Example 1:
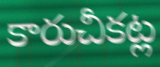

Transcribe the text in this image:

కారుచీకట్ల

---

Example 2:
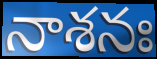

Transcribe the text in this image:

నాశనః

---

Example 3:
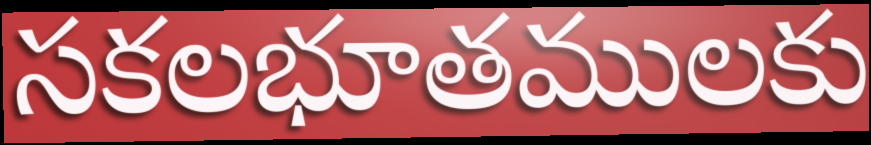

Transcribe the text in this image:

సకలభూతములకు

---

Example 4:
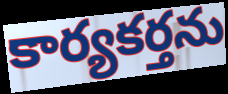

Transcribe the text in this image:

కార్యకర్తను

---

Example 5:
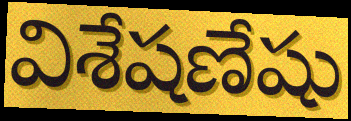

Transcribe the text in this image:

విశేషణేషు